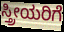
ಸ್ತ್ರೀಯರಿಗೆ